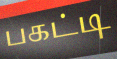
பகட்டி